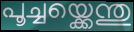
പൂച്ചയ്ക്കെന്തു